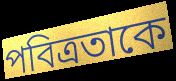
পবিত্রতাকে